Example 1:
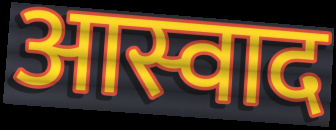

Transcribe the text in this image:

आस्‍वाद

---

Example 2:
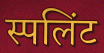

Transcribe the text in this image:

स्पलिंट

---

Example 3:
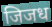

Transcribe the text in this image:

जिजध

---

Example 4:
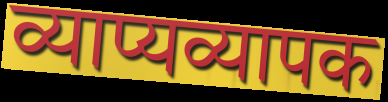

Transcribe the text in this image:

व्याप्यव्यापक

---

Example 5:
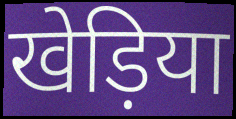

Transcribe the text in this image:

खेड़िया